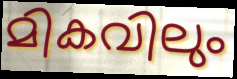
മികവിലും